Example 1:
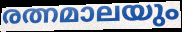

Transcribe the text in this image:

രത്നമാലയും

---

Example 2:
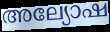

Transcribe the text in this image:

അല്യോഷ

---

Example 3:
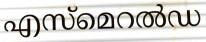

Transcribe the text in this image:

എസ്മെറൽഡ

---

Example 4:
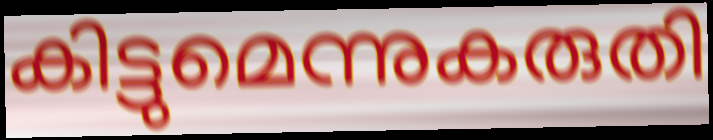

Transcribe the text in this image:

കിട്ടുമെന്നുകരുതി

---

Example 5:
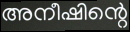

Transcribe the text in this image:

അനീഷിന്റെ